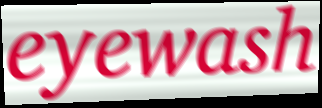
eyewash